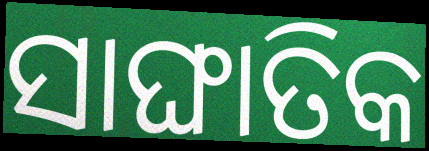
ସାଙ୍ଘାତିକ